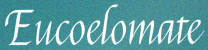
Eucoelomate